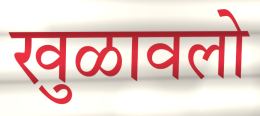
खुळावलो